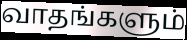
வாதங்களும்